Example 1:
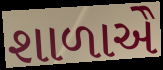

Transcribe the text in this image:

શાળાએે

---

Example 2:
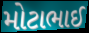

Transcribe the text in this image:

મોટાભાઈ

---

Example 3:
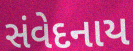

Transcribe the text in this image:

સંવેદનાય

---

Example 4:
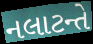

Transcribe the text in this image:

નલાટન્તે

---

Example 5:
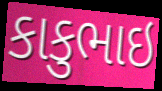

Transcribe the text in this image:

કાકુભાઇ